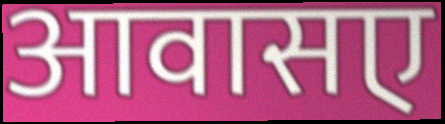
आवासए